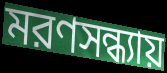
মরণসন্ধ্যায়